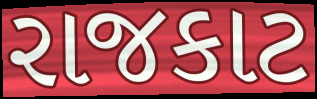
રાજકાટ